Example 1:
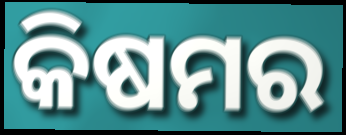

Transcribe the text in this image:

କିଷମର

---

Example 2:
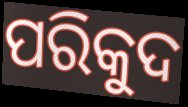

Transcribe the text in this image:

ପରିକୁଦ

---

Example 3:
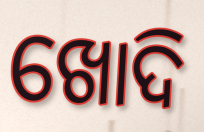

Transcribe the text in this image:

ଖୋଦି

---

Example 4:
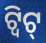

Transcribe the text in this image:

ଟ୍ୱିଟ୍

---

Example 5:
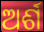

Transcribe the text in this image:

ଅର୍ଶ